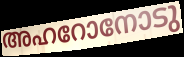
അഹറോനോടു